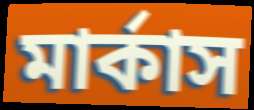
মার্কাস